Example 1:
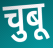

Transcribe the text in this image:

चुबू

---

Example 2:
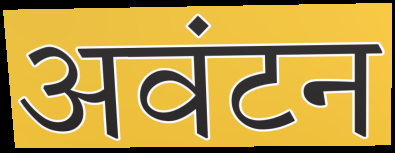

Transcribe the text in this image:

अवंटन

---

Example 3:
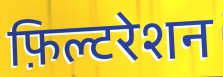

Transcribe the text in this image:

फ़िल्टरेशन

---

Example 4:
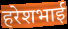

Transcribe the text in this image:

हरेशभाई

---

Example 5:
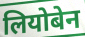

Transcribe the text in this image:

लियोबेन